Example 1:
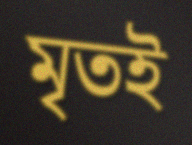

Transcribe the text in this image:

মৃতই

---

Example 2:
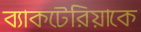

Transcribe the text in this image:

ব্যাকটেরিয়াকে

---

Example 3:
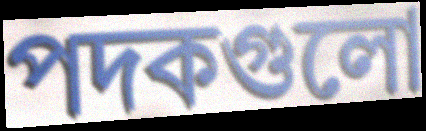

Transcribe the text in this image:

পদকগুলো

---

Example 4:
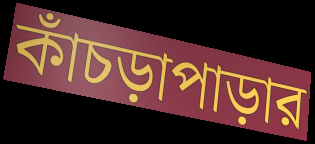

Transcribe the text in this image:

কাঁচড়াপাড়ার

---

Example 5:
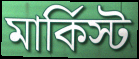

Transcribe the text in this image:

মার্কিস্ট